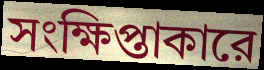
সংক্ষিপ্তাকারে